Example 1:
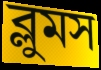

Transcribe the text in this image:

ব্লুমস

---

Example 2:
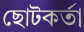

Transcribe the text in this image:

ছোটকর্তা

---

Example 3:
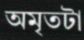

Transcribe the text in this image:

অমৃতটা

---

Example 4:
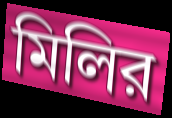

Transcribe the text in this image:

মিলির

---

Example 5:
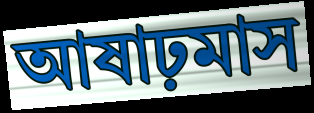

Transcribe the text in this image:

আষাঢ়মাস